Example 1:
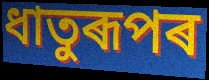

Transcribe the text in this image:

ধাতুৰূপৰ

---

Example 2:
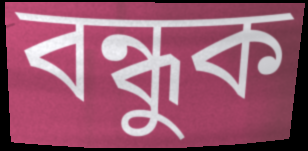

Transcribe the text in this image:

বন্ধুক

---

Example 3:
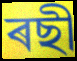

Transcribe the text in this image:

ৰছী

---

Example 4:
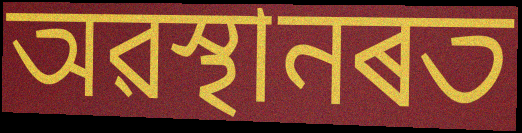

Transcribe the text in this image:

অৱস্থানৰত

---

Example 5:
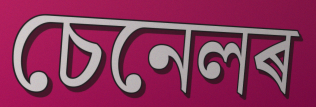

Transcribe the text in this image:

চেনেলৰ